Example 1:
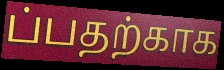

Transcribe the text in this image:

ப்பதற்காக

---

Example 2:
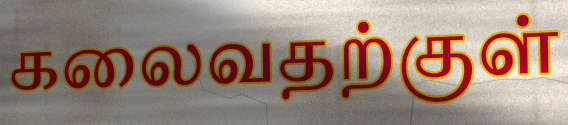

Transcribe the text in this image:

கலைவதற்குள்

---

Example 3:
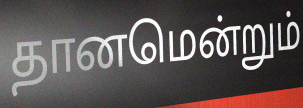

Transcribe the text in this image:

தானமென்றும்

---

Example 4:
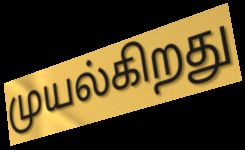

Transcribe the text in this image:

முயல்கிறது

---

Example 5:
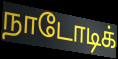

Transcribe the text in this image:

நாடோடிக்